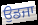
ਉਡਜਾ